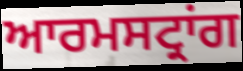
ਆਰਮਸਟ੍ਰਾਂਗ